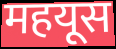
महयूस